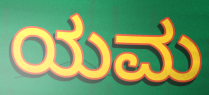
ಯಮ